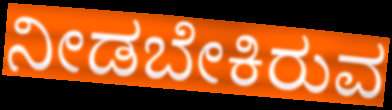
ನೀಡಬೇಕಿರುವ